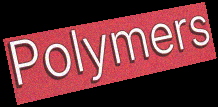
Polymers